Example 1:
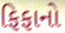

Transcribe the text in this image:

ફિફાનો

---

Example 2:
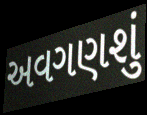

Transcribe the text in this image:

અવગણશું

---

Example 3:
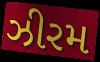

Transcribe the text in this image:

ઝીરમ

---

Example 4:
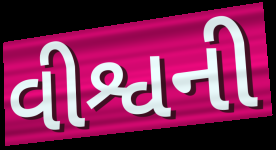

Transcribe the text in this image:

વીશ્વની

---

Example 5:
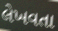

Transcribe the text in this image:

લેખવતા